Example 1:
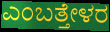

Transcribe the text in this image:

ಎಂಬತ್ತೇಳರ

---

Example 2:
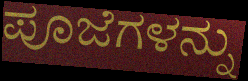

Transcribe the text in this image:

ಪೂಜೆಗಳನ್ನು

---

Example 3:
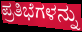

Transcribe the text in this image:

ಪ್ರತಿಭೆಗಳನ್ನು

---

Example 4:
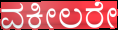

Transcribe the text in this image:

ವಕೀಲರೇ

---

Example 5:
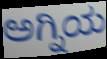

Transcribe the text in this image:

ಅಗ್ನಿಯ